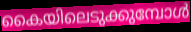
കൈയിലെടുക്കുമ്പോൾ